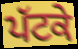
ਪੱਟਕੇ